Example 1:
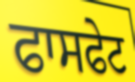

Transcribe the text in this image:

ਫਾਸਫੇਟ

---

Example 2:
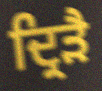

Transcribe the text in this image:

ਦ੍ਰਿੜੈ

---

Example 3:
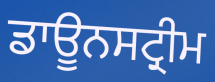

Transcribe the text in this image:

ਡਾਊਨਸਟ੍ਰੀਮ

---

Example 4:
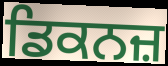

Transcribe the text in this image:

ਡਿਕਨਜ਼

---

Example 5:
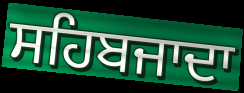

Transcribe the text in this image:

ਸਹਿਬਜਾਦਾ